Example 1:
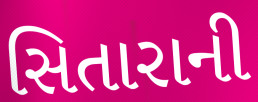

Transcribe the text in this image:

સિતારાની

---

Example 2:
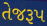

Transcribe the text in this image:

તેજરૂપ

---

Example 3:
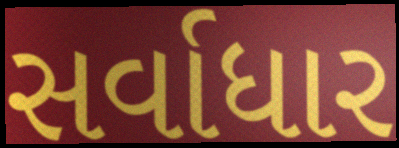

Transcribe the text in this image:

સર્વાધાર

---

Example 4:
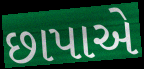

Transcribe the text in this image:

છાપાએ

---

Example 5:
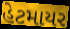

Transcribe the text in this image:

હેટમાયર